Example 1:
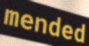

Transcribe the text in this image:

mended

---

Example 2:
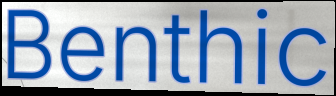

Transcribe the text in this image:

Benthic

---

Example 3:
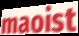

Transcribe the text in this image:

maoist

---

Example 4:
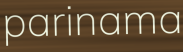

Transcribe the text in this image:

parinama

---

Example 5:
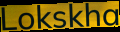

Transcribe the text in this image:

Lokskha